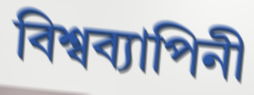
বিশ্বব্যাপিনী